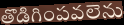
తొడిగింపవలెను